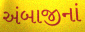
અંબાજીનાં